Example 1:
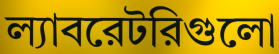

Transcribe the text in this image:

ল্যাবরেটরিগুলো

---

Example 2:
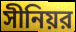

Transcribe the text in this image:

সীনিয়র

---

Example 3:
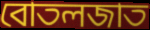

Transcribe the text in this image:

বোতলজাত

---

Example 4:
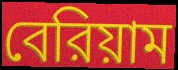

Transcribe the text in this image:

বেরিয়াম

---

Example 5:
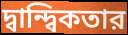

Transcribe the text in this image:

দ্বান্দ্বিকতার